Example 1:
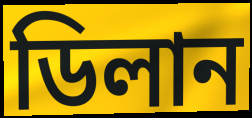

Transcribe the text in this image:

ডিলান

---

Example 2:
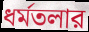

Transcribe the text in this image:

ধর্মতলার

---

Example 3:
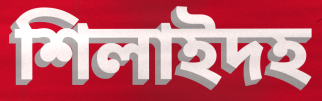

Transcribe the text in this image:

শিলাইদহ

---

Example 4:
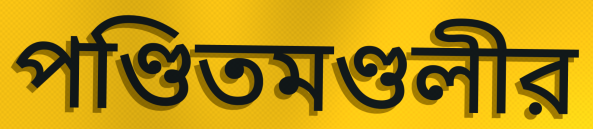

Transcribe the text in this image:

পণ্ডিতমণ্ডলীর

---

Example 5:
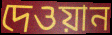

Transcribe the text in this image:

দেওয়ান